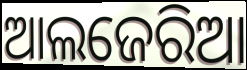
ଆଲଜେରିଆ